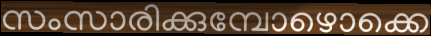
സംസാരിക്കുമ്പോഴൊക്കെ